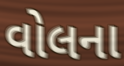
વોલના